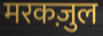
मरकज़ुल